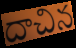
దాచిన